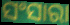
ସଂସାରା